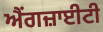
ਐਂਗਜ਼ਾਈਟੀ